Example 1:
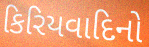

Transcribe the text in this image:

કિરિયવાદિનો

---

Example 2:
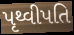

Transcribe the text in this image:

પૃથ્વીપતિ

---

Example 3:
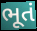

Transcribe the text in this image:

ભૂતં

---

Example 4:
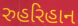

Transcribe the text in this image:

રુહરિહાન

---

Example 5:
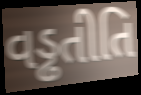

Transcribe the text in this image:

વડ્ઢતીતિ